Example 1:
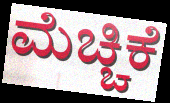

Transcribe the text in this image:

ಮೆಚ್ಚಿಕೆ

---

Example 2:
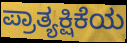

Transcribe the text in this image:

ಪ್ರಾತ್ಯಕ್ಷಿಕೆಯ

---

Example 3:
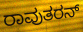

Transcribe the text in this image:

ರಾವುತರನ್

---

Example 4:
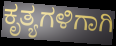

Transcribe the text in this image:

ಕೃತ್ಯಗಳಿಗಾಗಿ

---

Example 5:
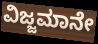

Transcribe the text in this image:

ವಿಜ್ಜಮಾನೇ